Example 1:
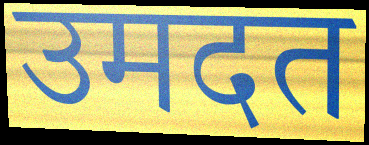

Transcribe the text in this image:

उमदत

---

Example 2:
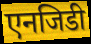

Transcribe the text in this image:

एनजिडी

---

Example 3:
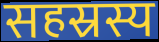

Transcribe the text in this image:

सहस्रस्य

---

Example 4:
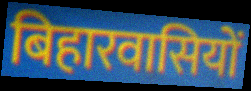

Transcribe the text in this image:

बिहारवासियों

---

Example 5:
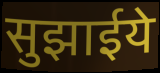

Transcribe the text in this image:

सुझाईये